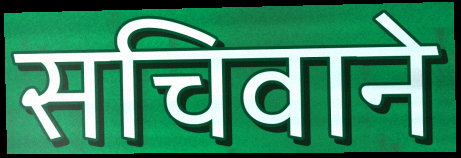
सचिवाने